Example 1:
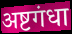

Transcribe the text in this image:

अष्टगंधा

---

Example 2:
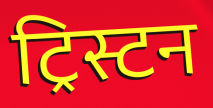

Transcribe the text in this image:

ट्रिस्टन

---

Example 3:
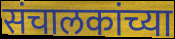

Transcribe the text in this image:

संचालकांच्या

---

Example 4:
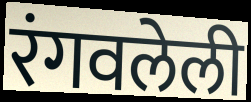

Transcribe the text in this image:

रंगवलेली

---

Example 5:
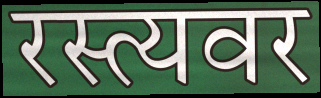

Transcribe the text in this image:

रस्त्यवर